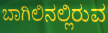
ಬಾಗಿಲಿನಲ್ಲಿರುವ